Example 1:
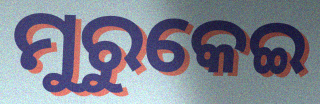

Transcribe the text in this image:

ମୁରୁକେଇ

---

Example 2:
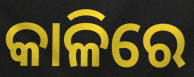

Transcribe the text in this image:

କାଳିରେ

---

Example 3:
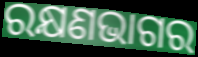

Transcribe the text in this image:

ରକ୍ଷଣଭାଗର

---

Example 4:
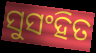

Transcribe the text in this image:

ସୁସଂହିତ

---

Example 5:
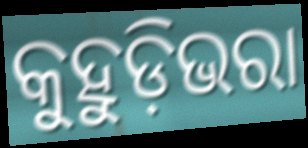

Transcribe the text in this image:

କୁହୁଡ଼ିଭରା